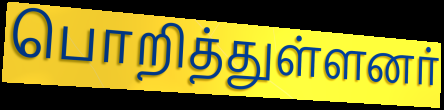
பொறித்துள்ளனர்